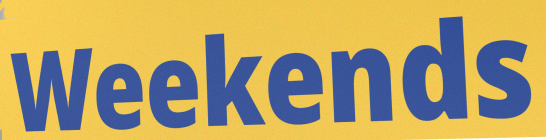
Weekends